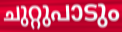
ചുറ്റുപാടും